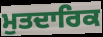
ਮੁਤਦਾਰਿਕ